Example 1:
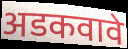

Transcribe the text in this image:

अडकवावे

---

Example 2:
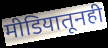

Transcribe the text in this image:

मीडियातूनही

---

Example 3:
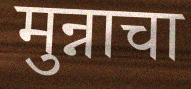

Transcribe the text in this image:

मुन्नाचा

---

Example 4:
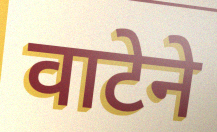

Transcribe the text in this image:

वाटेने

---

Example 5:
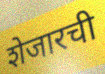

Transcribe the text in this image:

शेजारची